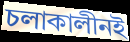
চলাকালীনই